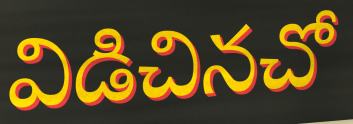
విడిచినచో